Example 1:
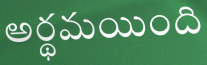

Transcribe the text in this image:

అర్థమయింది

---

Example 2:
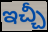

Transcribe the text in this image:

ఇచ్చీ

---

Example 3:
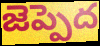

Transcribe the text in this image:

జెప్పెద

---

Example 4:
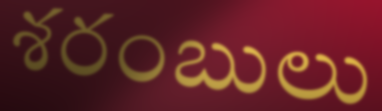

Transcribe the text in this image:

శరంబులు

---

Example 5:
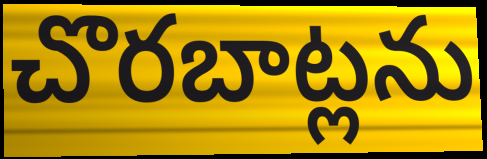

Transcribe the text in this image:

చొరబాట్లను